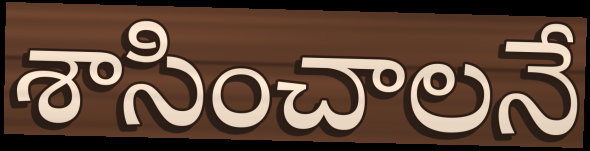
శాసించాలనే